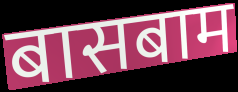
बासबाम